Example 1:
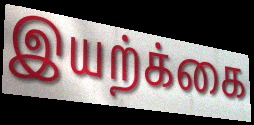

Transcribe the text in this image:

இயற்க்கை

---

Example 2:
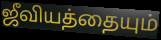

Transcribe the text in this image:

ஜீவியத்தையும்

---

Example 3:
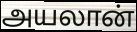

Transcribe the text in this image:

அயலான்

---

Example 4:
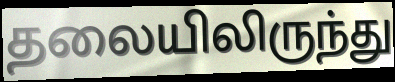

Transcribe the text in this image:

தலையிலிருந்து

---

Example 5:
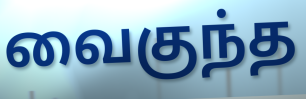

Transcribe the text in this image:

வைகுந்த